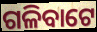
ଗଳିବାଟେ